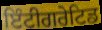
ਇੰਟੀਗਰੇਟਿਡ